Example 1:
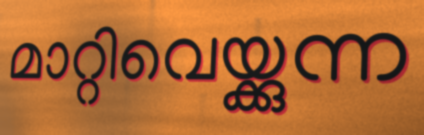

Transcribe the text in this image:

മാറ്റിവെയ്ക്കുന്ന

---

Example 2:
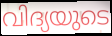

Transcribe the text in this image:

വിദ്യയുടെ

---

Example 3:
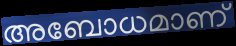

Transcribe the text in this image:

അബോധമാണ്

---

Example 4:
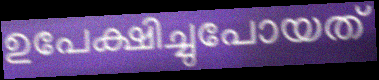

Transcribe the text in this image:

ഉപേക്ഷിച്ചുപോയത്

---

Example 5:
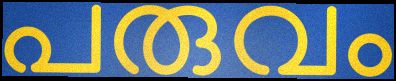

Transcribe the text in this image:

പരുവം